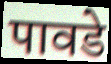
पावडे